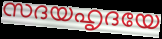
സദയഹൃദയേ